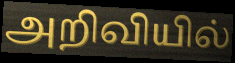
அறிவியில்